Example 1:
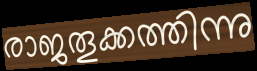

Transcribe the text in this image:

രാജതൂക്കത്തിന്നു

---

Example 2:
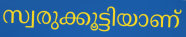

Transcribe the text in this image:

സ്വരുക്കൂട്ടിയാണ്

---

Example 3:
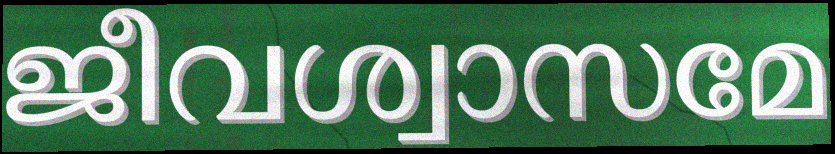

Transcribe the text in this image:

ജീവശ്വാസമേ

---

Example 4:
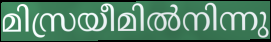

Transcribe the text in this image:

മിസ്രയീമിൽനിന്നു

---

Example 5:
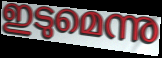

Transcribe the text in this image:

ഇടുമെന്നു